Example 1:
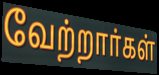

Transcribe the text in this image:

வேற்றார்கள்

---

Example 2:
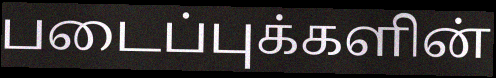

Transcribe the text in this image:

படைப்புக்களின்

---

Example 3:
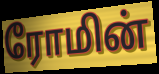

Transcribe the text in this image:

ரோமின்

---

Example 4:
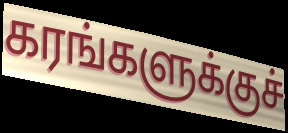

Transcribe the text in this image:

கரங்களுக்குச்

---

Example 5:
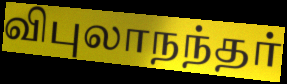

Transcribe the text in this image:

விபுலாநந்தர்